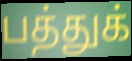
பத்துக்